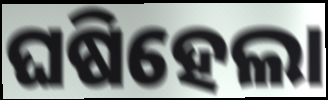
ଘଷିହେଲା